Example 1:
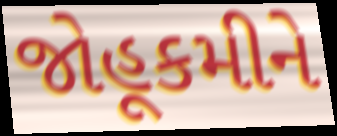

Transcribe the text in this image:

જોહૂકમીને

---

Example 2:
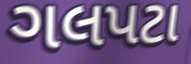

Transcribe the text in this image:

ગલપટા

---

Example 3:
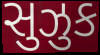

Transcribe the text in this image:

સુઝુક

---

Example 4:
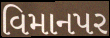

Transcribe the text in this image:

વિમાનપર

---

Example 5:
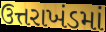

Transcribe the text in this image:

ઉત્તરાખંડમાં